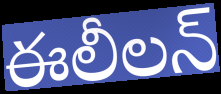
ఈలీలన్